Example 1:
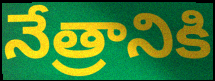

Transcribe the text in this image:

నేత్రానికి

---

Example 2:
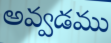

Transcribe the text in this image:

అవ్వడము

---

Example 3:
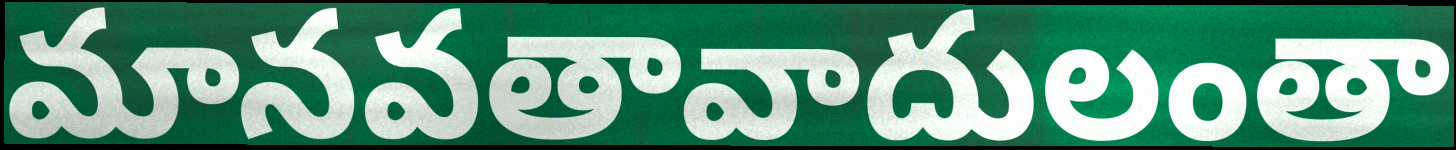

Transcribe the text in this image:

మానవతావాదులంతా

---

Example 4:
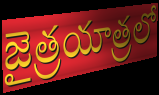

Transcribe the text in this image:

జైత్రయాత్రలో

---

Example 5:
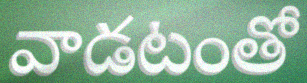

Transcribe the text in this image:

వాడటంతో